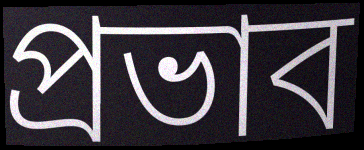
প্রভাব